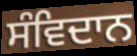
ਸੰਵਿਦਾਨ